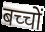
बच्‍चों